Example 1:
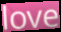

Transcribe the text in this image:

love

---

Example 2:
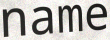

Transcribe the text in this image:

name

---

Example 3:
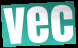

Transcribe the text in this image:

vec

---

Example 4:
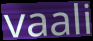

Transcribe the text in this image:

vaali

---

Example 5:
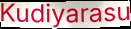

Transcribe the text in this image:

Kudiyarasu